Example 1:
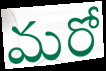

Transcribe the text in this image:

మరో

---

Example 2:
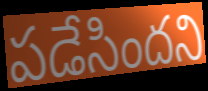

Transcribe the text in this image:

పడేసిందని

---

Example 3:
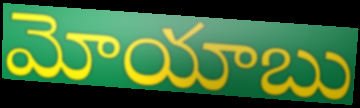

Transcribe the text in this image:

మోయాబు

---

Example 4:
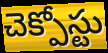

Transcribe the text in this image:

చెక్పోస్టు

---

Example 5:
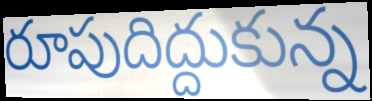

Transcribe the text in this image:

రూపుదిద్దుకున్న